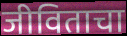
जीविताचा